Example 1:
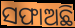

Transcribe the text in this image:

ସଫାଅଛି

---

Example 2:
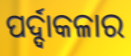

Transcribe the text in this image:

ପର୍ଦ୍ଦାକଳାର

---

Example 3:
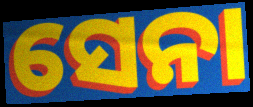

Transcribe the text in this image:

ସେନା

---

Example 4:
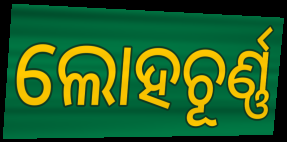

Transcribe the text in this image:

ଲୋହଚୂର୍ଣ୍ଣ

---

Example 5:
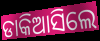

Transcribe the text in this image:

ଡାକିଆସିଲେ